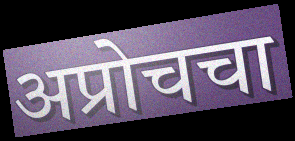
अप्रोचचा